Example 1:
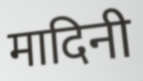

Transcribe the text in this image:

मादिनी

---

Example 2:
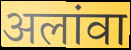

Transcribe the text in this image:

अलांवा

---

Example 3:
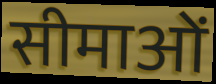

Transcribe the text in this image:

सीमाओं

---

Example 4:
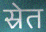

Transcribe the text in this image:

स्रेत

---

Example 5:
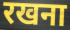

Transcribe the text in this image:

रखना